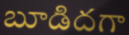
బూడిదగా